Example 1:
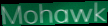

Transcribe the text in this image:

Mohawk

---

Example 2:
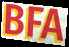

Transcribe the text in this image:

BFA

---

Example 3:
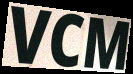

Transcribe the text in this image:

VCM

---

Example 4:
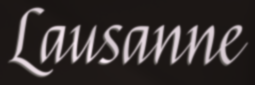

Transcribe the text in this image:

Lausanne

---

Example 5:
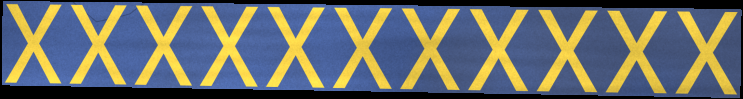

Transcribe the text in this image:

XXXXXXXXXXX